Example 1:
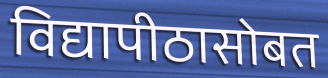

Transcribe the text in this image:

विद्यापीठासोबत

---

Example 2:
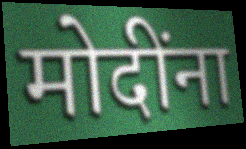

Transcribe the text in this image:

मोदींना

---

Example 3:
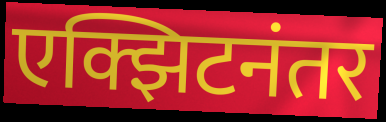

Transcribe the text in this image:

एक्झिटनंतर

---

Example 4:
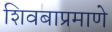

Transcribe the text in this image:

शिवबाप्रमाणे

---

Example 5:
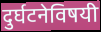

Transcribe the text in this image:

दुर्घटनेविषयी